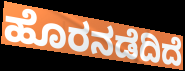
ಹೊರನಡೆದಿದೆ